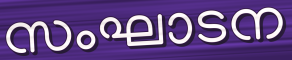
സംഘാടന